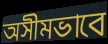
অসীমভাবে